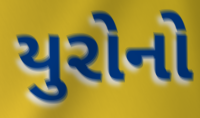
યુરોનો